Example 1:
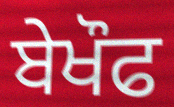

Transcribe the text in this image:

ਬੇਖੌਫ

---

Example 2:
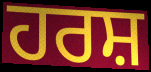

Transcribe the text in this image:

ਹਰਸ਼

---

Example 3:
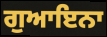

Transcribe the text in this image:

ਗੁਆਇਨਾ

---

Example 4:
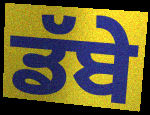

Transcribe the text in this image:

ਡੱਬੇ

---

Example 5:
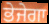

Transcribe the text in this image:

ਭੇਜੇਗਾ